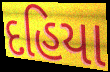
દહિયા